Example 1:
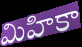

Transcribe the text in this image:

మిహికా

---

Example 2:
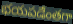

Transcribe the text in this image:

భయపడేంతగా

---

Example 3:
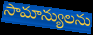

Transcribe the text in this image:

సామాన్యులను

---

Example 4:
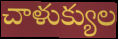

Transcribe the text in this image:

చాళుక్యుల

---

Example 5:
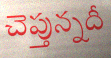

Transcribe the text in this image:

చెప్తున్నదీ